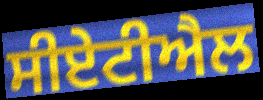
ਸੀਏਟੀਐਲ